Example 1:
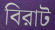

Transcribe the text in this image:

বিরাট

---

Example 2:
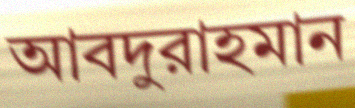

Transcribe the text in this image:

আবদুরাহমান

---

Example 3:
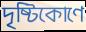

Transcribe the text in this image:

দৃষ্টিকোণে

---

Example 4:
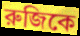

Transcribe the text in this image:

রুজিকে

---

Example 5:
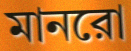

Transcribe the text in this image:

মানরো